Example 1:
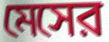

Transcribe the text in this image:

মেসের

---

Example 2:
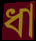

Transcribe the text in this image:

ধা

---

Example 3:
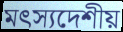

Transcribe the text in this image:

মৎস্যদেশীয়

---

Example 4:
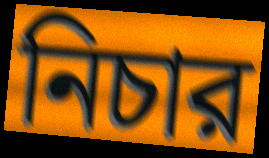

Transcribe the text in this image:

নিচার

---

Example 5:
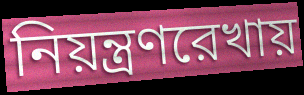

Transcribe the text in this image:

নিয়ন্ত্রণরেখায়